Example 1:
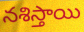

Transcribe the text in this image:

నశిస్తాయి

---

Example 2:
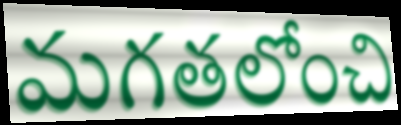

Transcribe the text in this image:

మగతలోంచి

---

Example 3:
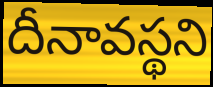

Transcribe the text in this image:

దీనావస్థని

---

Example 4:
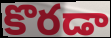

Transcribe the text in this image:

కొరడా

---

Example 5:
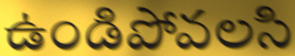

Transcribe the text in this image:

ఉండిపోవలసి